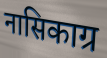
नासिकाग्र